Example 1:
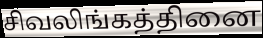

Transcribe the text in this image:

சிவலிங்கத்தினை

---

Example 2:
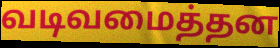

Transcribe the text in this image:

வடிவமைத்தன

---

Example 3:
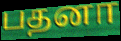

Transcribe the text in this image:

பதனா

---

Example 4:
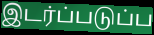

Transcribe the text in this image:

இடர்ப்படுப்ப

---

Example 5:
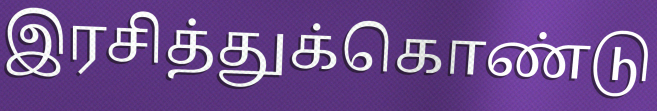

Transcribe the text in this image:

இரசித்துக்கொண்டு